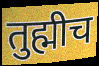
तुह्मीच